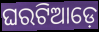
ଘରଟିଆଡ଼େ